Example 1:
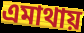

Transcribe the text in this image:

এমাথায়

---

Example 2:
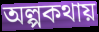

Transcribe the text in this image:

অল্পকথায়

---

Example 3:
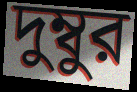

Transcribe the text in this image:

দুম্বুর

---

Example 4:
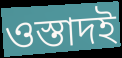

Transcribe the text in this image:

ওস্তাদই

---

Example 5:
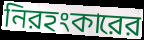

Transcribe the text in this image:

নিরহংকারের